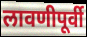
लावणीपूर्वी